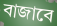
বাজাবে